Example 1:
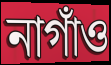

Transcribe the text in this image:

নাগাঁও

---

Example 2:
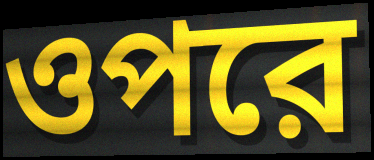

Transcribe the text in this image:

ওপরে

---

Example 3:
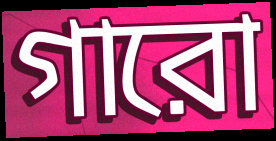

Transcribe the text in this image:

গারো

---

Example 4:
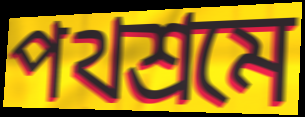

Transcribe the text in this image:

পথশ্রমে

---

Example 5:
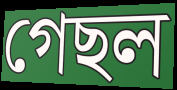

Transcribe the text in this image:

গেছল